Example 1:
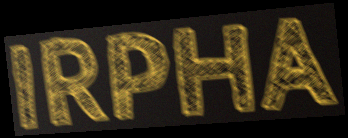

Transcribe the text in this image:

IRPHA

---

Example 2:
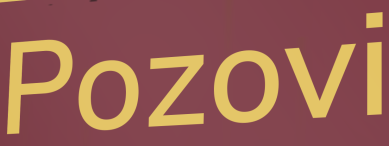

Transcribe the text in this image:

Pozovi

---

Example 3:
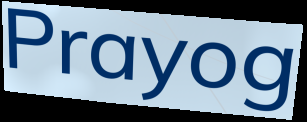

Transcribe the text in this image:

Prayog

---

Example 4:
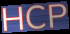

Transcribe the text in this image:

HCP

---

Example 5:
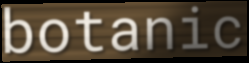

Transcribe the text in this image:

botanic